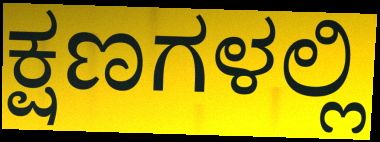
ಕ್ಷಣಗಳಲ್ಲಿ